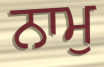
ਨਾਮੁ